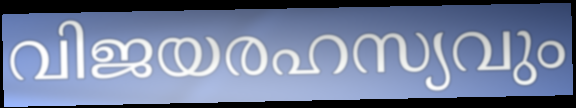
വിജയരഹസ്യവും